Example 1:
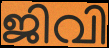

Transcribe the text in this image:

ജിവി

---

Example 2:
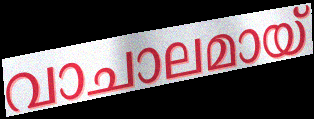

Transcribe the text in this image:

വാചാലമായ്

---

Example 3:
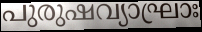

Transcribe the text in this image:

പുരുഷവ്യാഘ്രാഃ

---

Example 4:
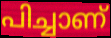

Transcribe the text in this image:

പിച്ചാണ്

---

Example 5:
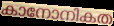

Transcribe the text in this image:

കാനോനികത